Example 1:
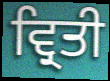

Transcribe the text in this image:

ਵ੍ਰਿਤੀ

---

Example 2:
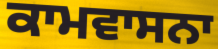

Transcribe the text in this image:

ਕਾਮਵਾਸਨਾ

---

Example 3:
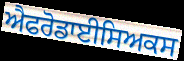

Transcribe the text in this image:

ਐਫਰੋਡਾਈਸਿਅਕਸ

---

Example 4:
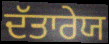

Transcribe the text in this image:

ਦੱਤਾਰੇਯ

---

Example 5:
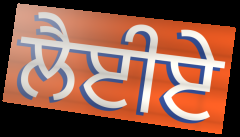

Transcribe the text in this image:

ਲੈਈਏ